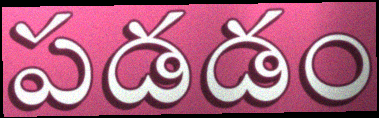
పడడం